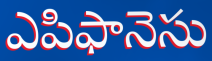
ఎపిఫానెసు